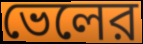
ভেলের